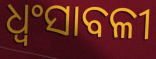
ଧ୍ୱଂସାବଳୀ